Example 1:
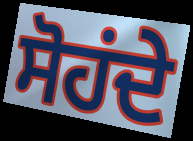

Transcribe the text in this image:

ਸੋਹਂਦੇ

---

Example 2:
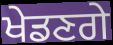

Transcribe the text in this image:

ਖੇਡਣਗੇ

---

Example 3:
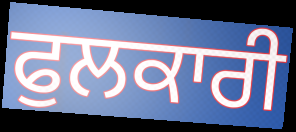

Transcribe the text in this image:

ਫੁਲਕਾਰੀ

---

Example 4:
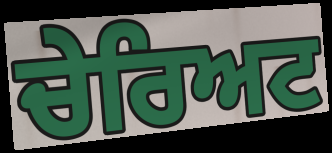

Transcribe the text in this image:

ਚੇਰਿਅਟ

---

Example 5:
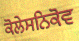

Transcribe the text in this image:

ਕੋਲੇਸਨਿਕੋਵ